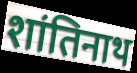
शांतिनाथ